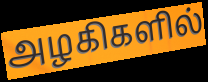
அழகிகளில்